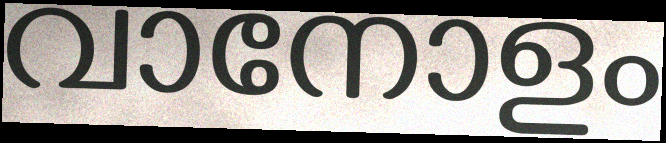
വാനോളം